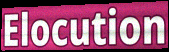
Elocution